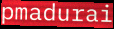
pmadurai